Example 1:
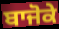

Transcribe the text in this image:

ਬਾਜੋਕੇ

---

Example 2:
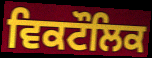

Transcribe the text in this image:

ਵਿਕਟੌਲਿਕ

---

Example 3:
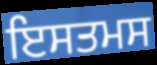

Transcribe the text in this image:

ਇਸਤਮਸ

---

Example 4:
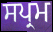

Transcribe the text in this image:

ਸਪ੍ਰਮ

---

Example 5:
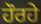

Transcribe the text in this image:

ਹੌਰਹੇ